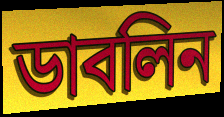
ডাবলিন